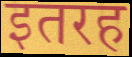
इतरह